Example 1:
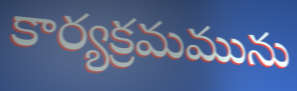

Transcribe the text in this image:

కార్యక్రమమును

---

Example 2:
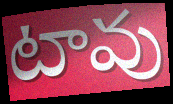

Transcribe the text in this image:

టావు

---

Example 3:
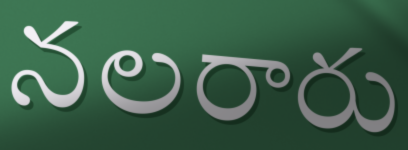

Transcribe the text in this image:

నలరారు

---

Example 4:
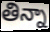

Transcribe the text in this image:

తిన్నా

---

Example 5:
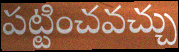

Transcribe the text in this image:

పట్టించవచ్చు